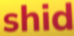
shid